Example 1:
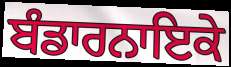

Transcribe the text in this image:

ਬੰਡਾਰਨਾਇਕੇ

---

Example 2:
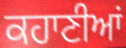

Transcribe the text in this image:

ਕਹਾਣੀਆਂ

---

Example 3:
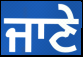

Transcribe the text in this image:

ਜਾਣੇ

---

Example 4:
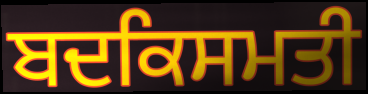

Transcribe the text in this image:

ਬਦਕਿਸਮਤੀ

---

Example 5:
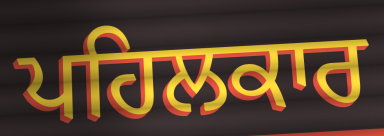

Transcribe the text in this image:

ਪਹਿਲਕਾਰ